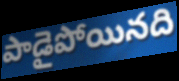
పాడైపోయినది